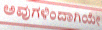
ಅವುಗಳಿಂದಾಗಿಯೇ